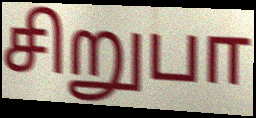
சிறுபா